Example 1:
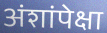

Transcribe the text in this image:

अंशांपेक्षा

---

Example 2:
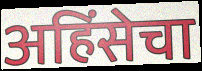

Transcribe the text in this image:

अहिंसेचा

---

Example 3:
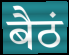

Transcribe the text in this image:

बैठं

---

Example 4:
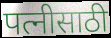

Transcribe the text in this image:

पत्नीसाठी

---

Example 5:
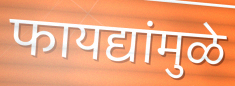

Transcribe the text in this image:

फायद्यांमुळे